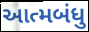
આત્મબંધુ